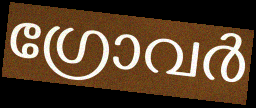
ഗ്രോവർ